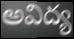
అవిద్య